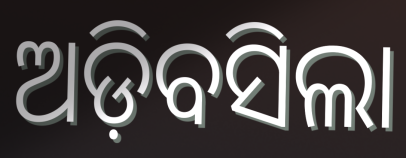
ଅଡ଼ିବସିଲା